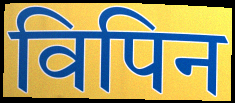
विपिन